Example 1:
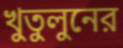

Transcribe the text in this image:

খুতুলুনের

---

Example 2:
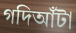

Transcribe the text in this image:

গদিআঁটা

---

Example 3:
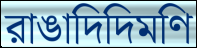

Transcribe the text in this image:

রাঙাদিদিমণি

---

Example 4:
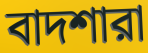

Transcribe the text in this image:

বাদশারা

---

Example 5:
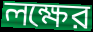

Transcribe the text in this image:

লক্ষের